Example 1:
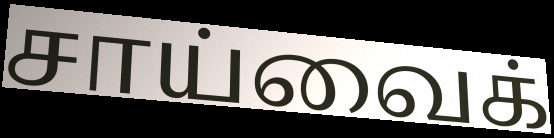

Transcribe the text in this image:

சாய்வைக்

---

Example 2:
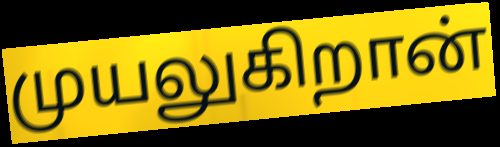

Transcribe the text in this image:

முயலுகிறான்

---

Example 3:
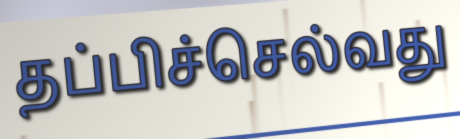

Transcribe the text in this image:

தப்பிச்செல்வது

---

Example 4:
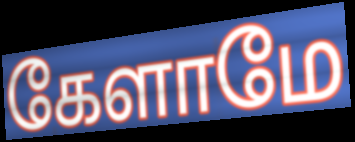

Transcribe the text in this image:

கேளாமே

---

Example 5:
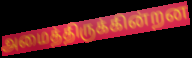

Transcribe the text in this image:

அமைத்திருக்கின்றன